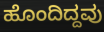
ಹೊಂದಿದ್ದವು